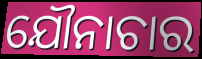
ଯୌନାଚାର